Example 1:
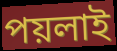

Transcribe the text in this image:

পয়লাই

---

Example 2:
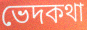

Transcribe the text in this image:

ভেদকথা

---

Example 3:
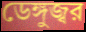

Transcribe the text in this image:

ডেঙ্গুজ্বর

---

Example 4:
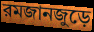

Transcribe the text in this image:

রমজানজুড়ে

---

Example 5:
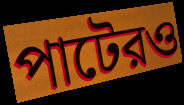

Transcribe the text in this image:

পাটেরও